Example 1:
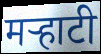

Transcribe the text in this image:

मऱ्हाटी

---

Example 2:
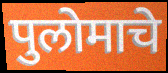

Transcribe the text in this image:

पुलोमाचे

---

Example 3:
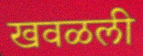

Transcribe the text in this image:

खवळली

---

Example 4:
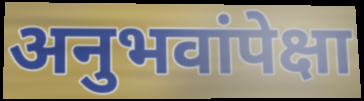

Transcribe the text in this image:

अनुभवांपेक्षा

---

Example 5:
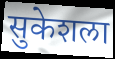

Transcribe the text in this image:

सुकेशला